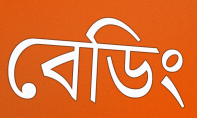
বেডিং